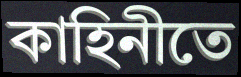
কাহিনীতে